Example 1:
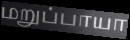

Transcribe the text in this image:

மறுப்பாயா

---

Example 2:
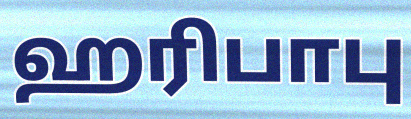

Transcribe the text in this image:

ஹரிபாபு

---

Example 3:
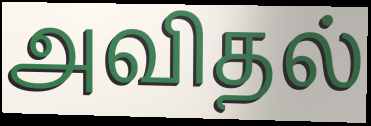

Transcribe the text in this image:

அவிதல்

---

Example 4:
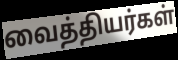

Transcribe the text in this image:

வைத்தியர்கள்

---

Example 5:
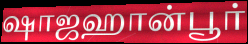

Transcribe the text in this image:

ஷாஜஹான்பூர்